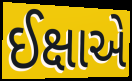
ઈક્ષાએ